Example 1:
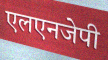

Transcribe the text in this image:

एलएनजेपी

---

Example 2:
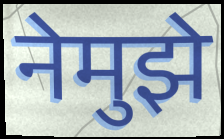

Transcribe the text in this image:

नेमुझे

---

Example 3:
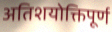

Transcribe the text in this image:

अतिशयोक्तिपूर्ण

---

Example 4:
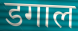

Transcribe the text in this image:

डगाल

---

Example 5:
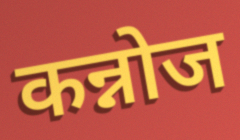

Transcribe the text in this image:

कन्नोज